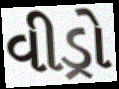
વીડ્રો